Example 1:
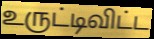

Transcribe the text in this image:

உருட்டிவிட்ட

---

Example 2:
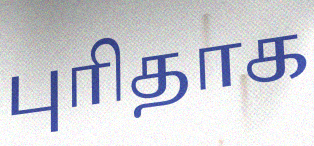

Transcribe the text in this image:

புரிதாக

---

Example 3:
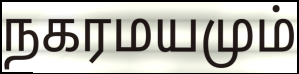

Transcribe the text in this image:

நகரமயமும்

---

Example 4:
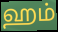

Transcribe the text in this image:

ஹம்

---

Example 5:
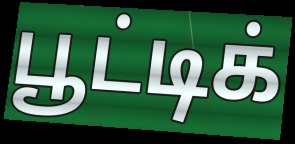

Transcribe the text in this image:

பூட்டிக்